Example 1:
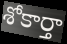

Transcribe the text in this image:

శోకార్తా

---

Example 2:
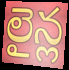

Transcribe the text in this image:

లైన్ల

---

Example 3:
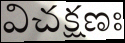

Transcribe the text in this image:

విచక్షణః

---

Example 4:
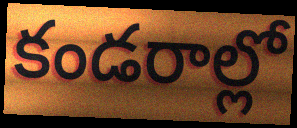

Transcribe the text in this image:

కండరాల్లో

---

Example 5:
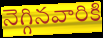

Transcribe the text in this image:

నెగ్గినవారికి